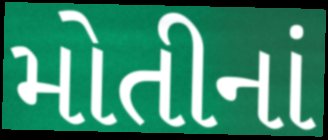
મોતીનાં